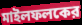
মাইলফলকের